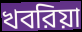
খবরিয়া